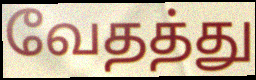
வேதத்து